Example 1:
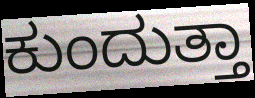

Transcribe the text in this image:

ಕುಂದುತ್ತಾ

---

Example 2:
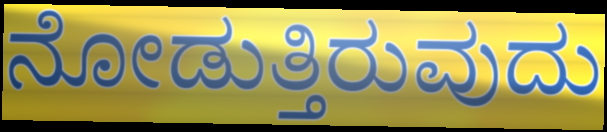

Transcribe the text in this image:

ನೋಡುತ್ತಿರುವುದು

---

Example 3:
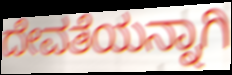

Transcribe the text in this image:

ದೇವತೆಯನ್ನಾಗಿ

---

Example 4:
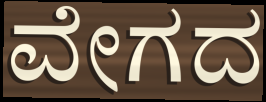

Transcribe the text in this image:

ವೇಗದ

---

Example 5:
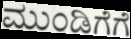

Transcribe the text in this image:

ಮುಂಡಿಗೆಗೆ